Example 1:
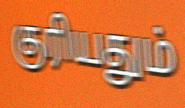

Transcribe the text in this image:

குரியதும்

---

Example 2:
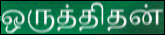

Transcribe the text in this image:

ஒருத்திதன்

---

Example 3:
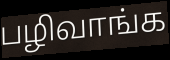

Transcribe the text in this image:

பழிவாங்க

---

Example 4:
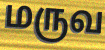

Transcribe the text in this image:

மருவ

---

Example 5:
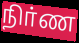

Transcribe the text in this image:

நிர்ண